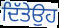
ਦਿੱਤੇਉਹ